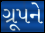
ગ્રૂપને